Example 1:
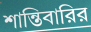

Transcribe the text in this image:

শান্তিবারির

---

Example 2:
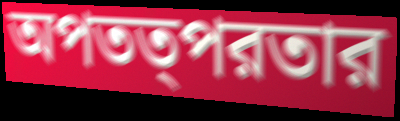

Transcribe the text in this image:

অপতত্পরতার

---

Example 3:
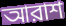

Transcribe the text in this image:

আরাশ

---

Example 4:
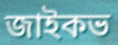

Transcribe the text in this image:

জাইকভ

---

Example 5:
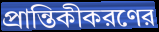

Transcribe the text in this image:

প্রান্তিকীকরণের